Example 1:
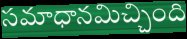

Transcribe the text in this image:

సమాధానమిచ్చింది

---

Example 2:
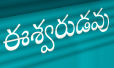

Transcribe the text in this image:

ఈశ్వరుడవు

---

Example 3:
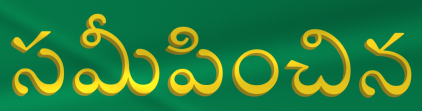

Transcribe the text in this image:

సమీపించిన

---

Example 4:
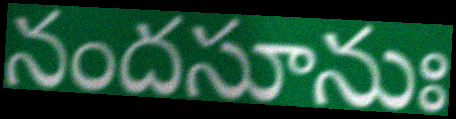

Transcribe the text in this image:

నందసూనుః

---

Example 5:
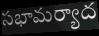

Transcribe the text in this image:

సభామర్యాద